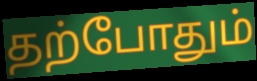
தற்போதும்